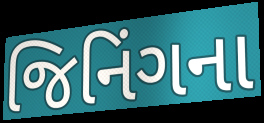
જિનિંગના